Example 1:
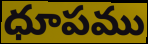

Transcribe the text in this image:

ధూపము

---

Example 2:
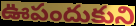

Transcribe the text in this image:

ఊపందుకుని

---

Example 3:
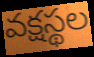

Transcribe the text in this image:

వక్షస్థల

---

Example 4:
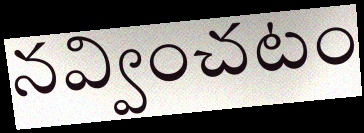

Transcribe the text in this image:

నవ్వించటం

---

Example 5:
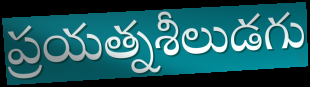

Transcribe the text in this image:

ప్రయత్నశీలుడగు